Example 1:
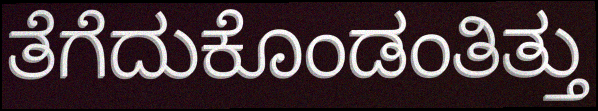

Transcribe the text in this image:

ತೆಗೆದುಕೊಂಡಂತಿತ್ತು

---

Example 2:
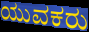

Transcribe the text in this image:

ಯುವಕರು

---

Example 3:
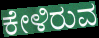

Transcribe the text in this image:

ಕೇಳಿರುವ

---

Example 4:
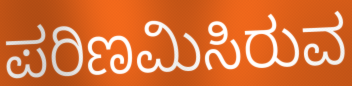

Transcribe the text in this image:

ಪರಿಣಮಿಸಿರುವ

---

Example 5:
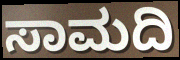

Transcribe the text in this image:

ಸಾಮದಿ